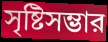
সৃষ্টিসম্ভার